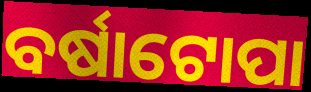
ବର୍ଷାଟୋପା